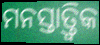
ମନସ୍ତାତ୍ତ୍ବିକ